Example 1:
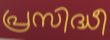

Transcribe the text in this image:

പ്രസിദ്ധീ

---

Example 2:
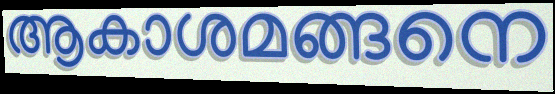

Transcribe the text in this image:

ആകാശമങ്ങനെ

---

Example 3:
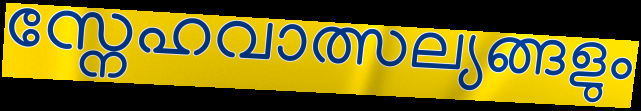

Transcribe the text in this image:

സ്നേഹവാത്സല്യങ്ങളും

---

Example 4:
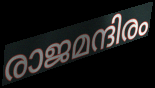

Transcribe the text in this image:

രാജമന്ദിരം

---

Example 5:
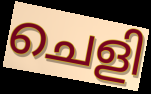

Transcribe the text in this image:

ചെളി